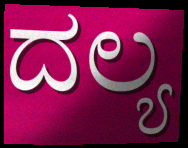
ದಲ್ಯ